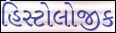
હિસ્ટોલોજીક